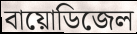
বায়োডিজেল